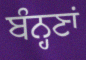
ਬੰਨ੍ਹਣਾਂ